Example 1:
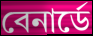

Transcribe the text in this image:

বেনাৰ্ডে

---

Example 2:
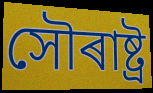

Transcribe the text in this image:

সৌৰাষ্ট্ৰ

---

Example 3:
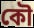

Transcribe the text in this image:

কৌ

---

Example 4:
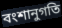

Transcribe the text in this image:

বংশানুগতি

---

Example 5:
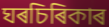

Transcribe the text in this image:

ঘৰচিৰিকাৰ